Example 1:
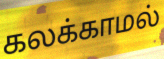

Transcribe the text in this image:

கலக்காமல்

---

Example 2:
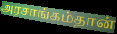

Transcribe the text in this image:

அரசாங்கம்தான்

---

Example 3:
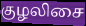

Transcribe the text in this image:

குழலிசை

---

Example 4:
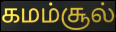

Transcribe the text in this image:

கமம்சூல்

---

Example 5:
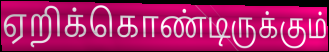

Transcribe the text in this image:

ஏறிக்கொண்டிருக்கும்